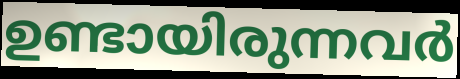
ഉണ്ടായിരുന്നവർ